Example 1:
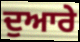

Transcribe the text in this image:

ਦੁਆਰੇ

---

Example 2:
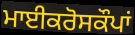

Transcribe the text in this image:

ਮਾਈਕਰੋਸਕੌਪਾਂ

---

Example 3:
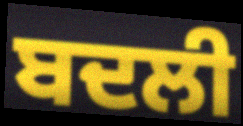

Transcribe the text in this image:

ਬਦਲੀ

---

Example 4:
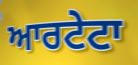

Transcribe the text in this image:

ਆਰਟੇਟਾ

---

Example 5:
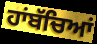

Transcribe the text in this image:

ਹਾਂਬੱਚਿਆਂ